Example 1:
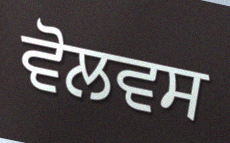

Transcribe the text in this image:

ਵੋਲਵਸ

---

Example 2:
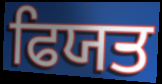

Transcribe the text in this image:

ਫਿਯਤ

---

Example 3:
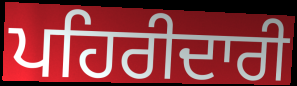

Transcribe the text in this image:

ਪਹਿਰੀਦਾਰੀ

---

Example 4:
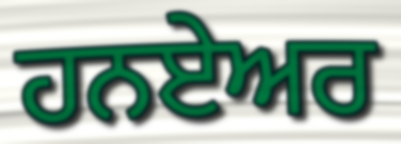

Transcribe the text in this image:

ਹਨਏਅਰ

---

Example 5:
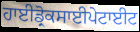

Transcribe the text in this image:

ਹਾਈਡ੍ਰੋਕਸਾਈਪੇਟਾਈਟ